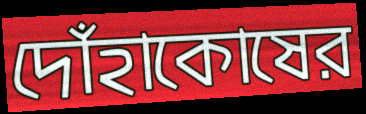
দোঁহাকোষের